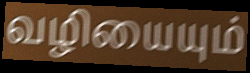
வழியையும்